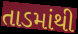
તાડમાંથી